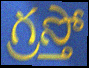
గ్రస్తో